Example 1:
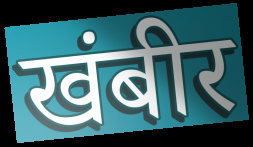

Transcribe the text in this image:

खंबीर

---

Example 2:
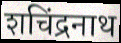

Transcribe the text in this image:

शचिंद्रनाथ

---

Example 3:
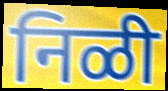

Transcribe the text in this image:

निळी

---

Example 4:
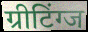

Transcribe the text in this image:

ग्रीटिंग्ज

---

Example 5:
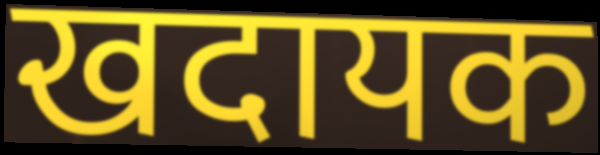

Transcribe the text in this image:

खदायक